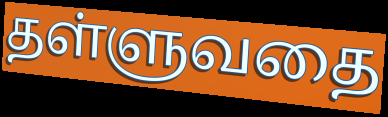
தள்ளுவதை